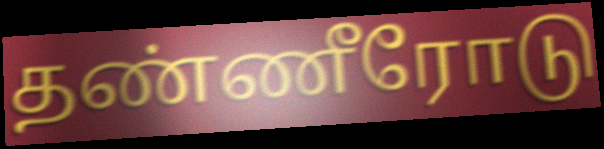
தண்ணீரோடு